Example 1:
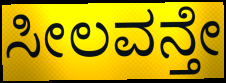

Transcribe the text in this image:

ಸೀಲವನ್ತೇ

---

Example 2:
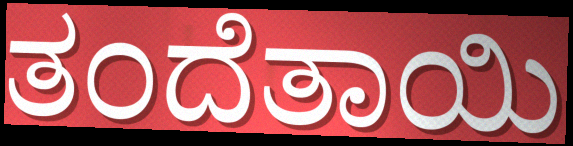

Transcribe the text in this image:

ತಂದೆತಾಯಿ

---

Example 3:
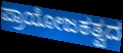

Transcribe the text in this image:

ಪ್ರಾಯೋಜಕತ್ವದ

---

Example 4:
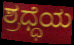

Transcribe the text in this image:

ಶ್ರಧ್ಧೆಯ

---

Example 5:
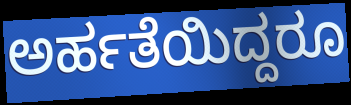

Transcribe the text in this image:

ಅರ್ಹತೆಯಿದ್ದರೂ